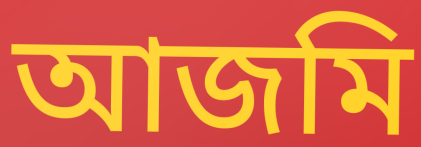
আজমি